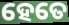
ହେତେ